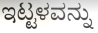
ಇಟ್ಟಳವನ್ನು